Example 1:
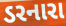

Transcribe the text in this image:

ડરનારા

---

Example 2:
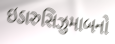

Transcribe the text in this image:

ઇડારુસિઝુમાબનો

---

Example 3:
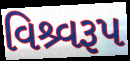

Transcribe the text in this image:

વિશ્ર્વરૂપ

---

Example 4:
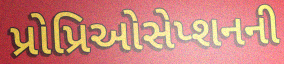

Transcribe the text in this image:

પ્રોપ્રિઓસેપ્શનની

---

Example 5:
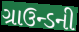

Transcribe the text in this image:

ગ્રાઉન્ડની